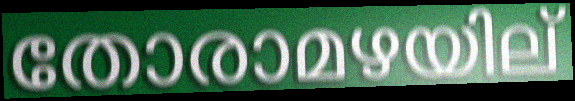
തോരാമഴയില്